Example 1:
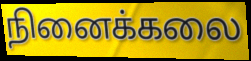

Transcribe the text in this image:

நினைக்கலை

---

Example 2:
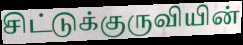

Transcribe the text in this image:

சிட்டுக்குருவியின்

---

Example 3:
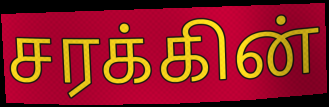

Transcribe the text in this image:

சரக்கின்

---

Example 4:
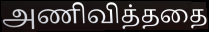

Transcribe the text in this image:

அணிவித்ததை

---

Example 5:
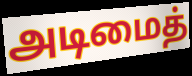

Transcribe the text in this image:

அடிமைத்